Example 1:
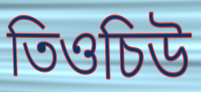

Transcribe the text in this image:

তিওচিউ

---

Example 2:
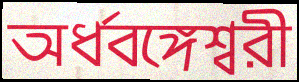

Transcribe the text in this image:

অর্ধবঙ্গেশ্বরী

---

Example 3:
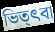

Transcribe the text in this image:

ভিত্ৎবা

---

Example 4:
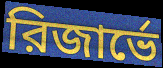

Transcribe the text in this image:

রিজার্ভে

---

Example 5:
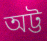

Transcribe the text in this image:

অট্ট